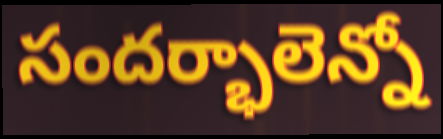
సందర్భాలెన్నో